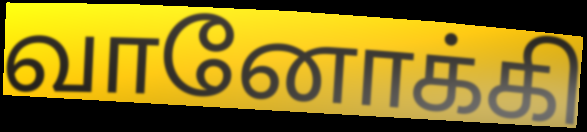
வானோக்கி